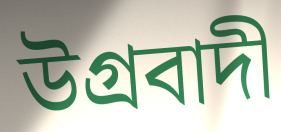
উগ্ৰবাদী